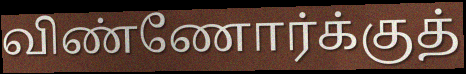
விண்ணோர்க்குத்